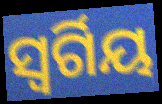
ସ୍ୱର୍ଗିୟ